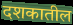
दशकातील